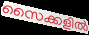
സൈക്കളിൽ